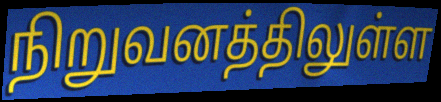
நிறுவனத்திலுள்ள